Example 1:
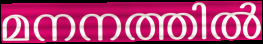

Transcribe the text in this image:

മനനത്തിൽ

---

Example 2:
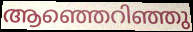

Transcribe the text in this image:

ആഞ്ഞെറിഞ്ഞു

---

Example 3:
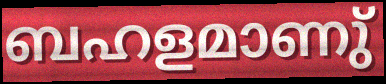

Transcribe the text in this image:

ബഹളമാണു്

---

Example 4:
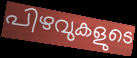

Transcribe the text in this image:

പിഴവുകളുടെ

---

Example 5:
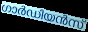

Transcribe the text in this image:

ഗാർഡിയൻസ്